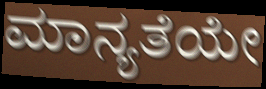
ಮಾನ್ಯತೆಯೇ